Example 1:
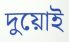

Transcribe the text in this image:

দুয়োই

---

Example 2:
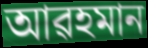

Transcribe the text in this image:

আৱহমান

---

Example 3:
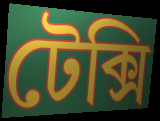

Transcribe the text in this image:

টেক্সি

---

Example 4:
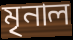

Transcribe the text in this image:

মৃনাল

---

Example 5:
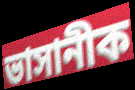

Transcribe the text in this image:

ভাসানীক